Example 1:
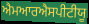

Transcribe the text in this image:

ਐਮਆਰਐਸਪੀਟੀਯੂ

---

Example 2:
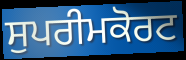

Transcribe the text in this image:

ਸੁਪਰੀਮਕੋਰਟ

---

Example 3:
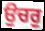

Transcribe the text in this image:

ਉਚਰੁ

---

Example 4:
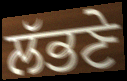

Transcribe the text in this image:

ਲੱਭਣੇ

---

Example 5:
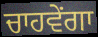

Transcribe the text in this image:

ਚਾਹਵੇਂਗਾ